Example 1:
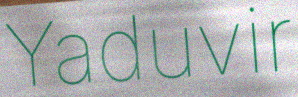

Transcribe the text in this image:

Yaduvir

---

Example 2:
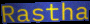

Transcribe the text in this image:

Rastha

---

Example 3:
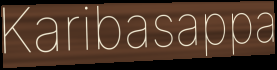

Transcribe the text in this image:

Karibasappa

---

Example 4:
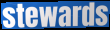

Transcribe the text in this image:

stewards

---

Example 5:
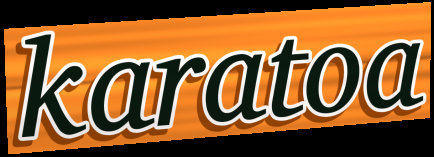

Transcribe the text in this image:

karatoa